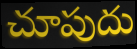
చూపుదు